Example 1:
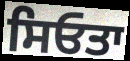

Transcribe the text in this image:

ਸਿਓਤਾ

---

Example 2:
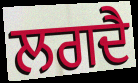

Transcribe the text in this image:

ਲਗਦੈ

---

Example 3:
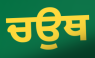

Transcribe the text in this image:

ਚਉਥ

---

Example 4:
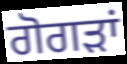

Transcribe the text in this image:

ਗੋਗੜਾਂ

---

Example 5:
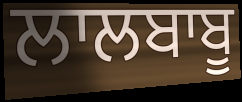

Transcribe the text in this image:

ਲਾਲਬਾਬੂ